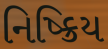
નિષ્ક્રિય